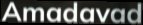
Amadavad